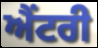
ਐਂਟਰੀ